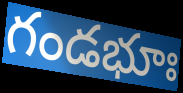
గండభూః